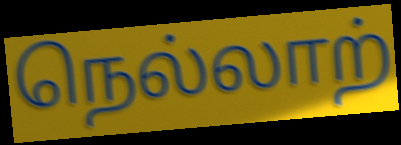
நெல்லாற்